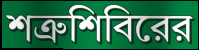
শত্রুশিবিরের